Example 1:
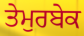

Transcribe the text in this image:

ਤੇਮੁਰਬੇਕ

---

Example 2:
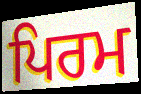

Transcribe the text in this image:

ਪਿਰਮ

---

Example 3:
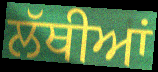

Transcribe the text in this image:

ਲੱਥੀਆਂ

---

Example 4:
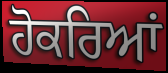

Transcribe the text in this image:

ਹੋਕਰਿਆਂ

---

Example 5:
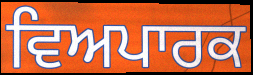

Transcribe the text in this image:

ਵਿਅਪਾਰਕ